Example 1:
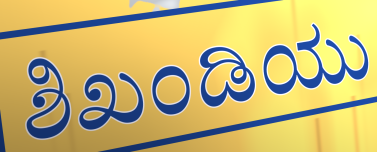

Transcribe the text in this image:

ಶಿಖಂಡಿಯು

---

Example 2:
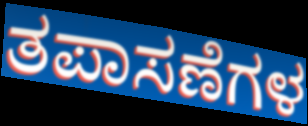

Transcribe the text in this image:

ತಪಾಸಣೆಗಳ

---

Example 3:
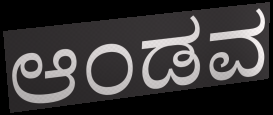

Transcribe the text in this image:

ಆಂಡವ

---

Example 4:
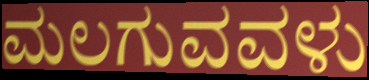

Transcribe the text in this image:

ಮಲಗುವವಳು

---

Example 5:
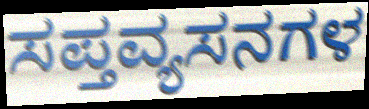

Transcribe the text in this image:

ಸಪ್ತವ್ಯಸನಗಳ